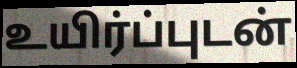
உயிர்ப்புடன்